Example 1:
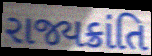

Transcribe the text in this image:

રાજ્યક્રાંતિ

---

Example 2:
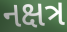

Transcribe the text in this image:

નક્ષત્ર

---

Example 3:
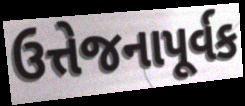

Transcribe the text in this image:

ઉત્તેજનાપૂર્વક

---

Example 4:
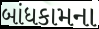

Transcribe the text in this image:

બાંધકામના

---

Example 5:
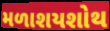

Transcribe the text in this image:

મળાશયશોથ